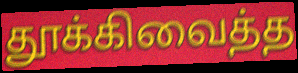
தூக்கிவைத்த